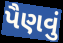
પૈણવું